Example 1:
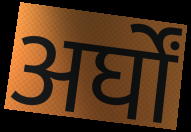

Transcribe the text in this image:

अर्घों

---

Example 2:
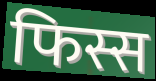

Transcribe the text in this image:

फिस्स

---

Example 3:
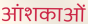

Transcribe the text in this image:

आंशकाओं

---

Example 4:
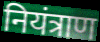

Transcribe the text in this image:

नियंत्राण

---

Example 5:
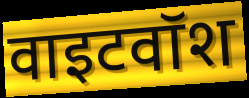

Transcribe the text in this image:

वाइटवॉश